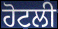
ਹੋਟਲੀ